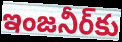
ఇంజనీర్‌కు